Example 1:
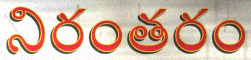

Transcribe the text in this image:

నిరంతరం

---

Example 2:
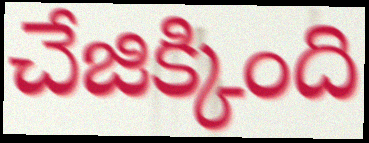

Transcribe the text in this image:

చేజిక్కింది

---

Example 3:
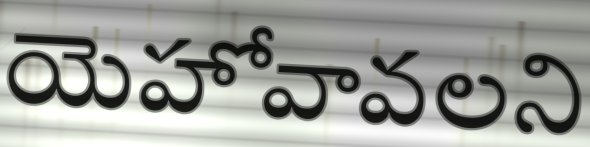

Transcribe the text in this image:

యెహోవావలని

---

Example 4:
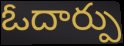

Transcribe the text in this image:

ఓదార్పు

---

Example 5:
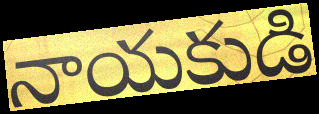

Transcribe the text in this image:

నాయకుడి